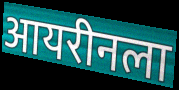
आयरीनला